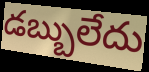
డబ్బులేదు